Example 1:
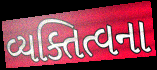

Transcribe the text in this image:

વ્યક્તિત્વના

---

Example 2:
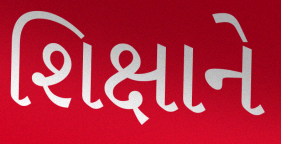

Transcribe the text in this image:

શિક્ષાને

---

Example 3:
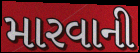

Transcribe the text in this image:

મારવાની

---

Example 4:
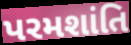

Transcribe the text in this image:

પરમશાંતિ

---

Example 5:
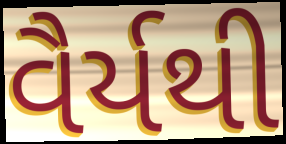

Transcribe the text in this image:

વૈર્યથી